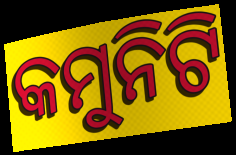
କମୁନିଟି